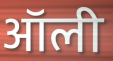
ऑली